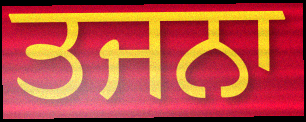
ਤਜਨਾ